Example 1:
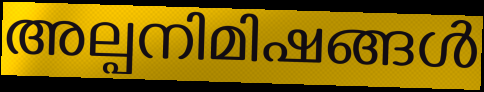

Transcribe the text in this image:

അല്പനിമിഷങ്ങൾ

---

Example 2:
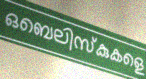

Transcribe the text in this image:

ഒബെലിസ്കുകളെ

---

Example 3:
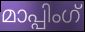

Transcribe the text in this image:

മാപ്പിംഗ്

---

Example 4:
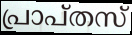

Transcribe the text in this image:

പ്രാപ്തസ്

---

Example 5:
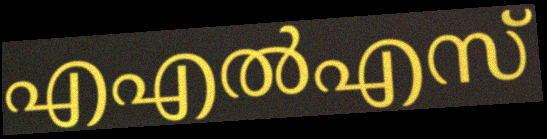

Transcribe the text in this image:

എഎൽഎസ്